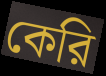
কেরি